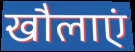
खौलाएं